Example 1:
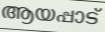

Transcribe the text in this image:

ആയപ്പാട്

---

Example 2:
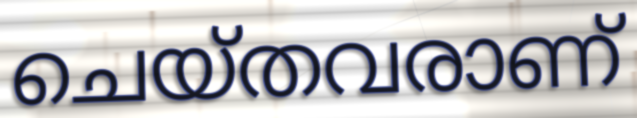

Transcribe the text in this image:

ചെയ്തവരാണ്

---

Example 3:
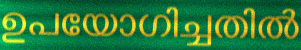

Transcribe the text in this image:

ഉപയോഗിച്ചതിൽ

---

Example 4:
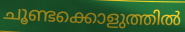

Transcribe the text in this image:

ചൂണ്ടക്കൊളുത്തിൽ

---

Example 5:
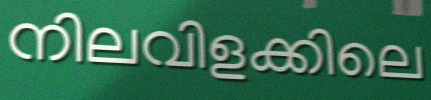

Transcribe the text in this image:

നിലവിളക്കിലെ